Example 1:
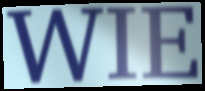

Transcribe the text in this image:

WIE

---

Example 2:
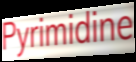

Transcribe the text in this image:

Pyrimidine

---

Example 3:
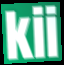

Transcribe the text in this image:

kii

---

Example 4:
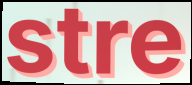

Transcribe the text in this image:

stre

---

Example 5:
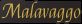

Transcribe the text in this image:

Malavaggo